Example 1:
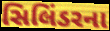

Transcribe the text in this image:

સિલિંડરના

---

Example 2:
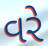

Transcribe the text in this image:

વરે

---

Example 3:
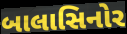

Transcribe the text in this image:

બાલાસિનોર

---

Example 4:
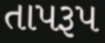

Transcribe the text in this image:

તાપરૂપ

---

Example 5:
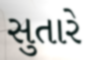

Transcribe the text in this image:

સુતારે